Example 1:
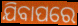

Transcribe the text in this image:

ଯିବାପରେ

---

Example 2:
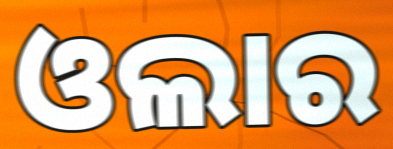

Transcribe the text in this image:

ଓଲାର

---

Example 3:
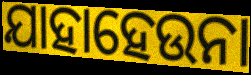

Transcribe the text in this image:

ଯାହାହେଉନା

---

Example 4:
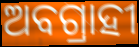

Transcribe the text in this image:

ଅବଗ୍ରାହୀ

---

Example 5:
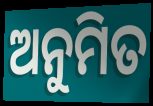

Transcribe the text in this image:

ଅନୁମିତ